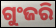
ଗୁଂଜରି